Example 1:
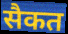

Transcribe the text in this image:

सैकत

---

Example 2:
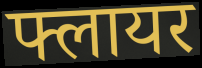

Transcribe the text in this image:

फ्लायर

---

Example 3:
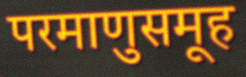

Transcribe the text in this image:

परमाणुसमूह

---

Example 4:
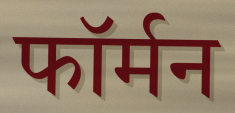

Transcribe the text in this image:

फॉर्मन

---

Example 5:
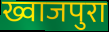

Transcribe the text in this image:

ख्वाजपुरा